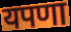
यपणा